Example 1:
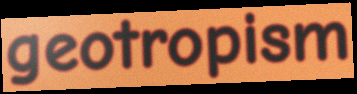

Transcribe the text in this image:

geotropism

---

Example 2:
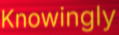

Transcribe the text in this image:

Knowingly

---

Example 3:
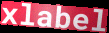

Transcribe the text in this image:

xlabel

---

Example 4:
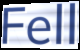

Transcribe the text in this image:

Fell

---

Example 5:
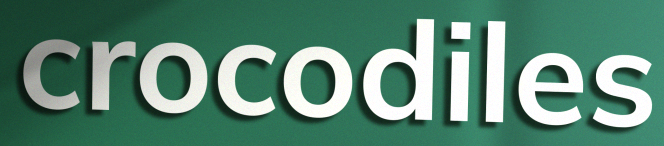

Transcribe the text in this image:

crocodiles